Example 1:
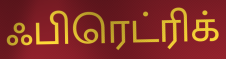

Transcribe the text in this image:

ஃபிரெட்ரிக்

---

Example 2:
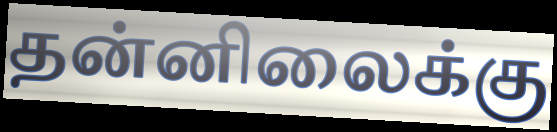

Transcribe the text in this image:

தன்னிலைக்கு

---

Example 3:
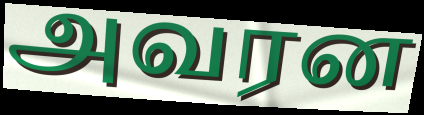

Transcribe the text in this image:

அவரன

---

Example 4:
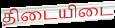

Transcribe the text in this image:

திடையிடை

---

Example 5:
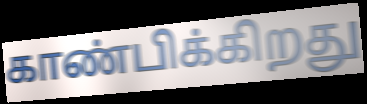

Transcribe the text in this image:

காண்பிக்கிறது